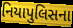
નિયાપુલિસના